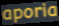
aporia